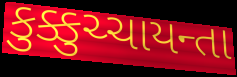
કુક્કુચ્ચાયન્તા